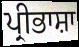
ਪ੍ਰੀਭਾਸ਼ਾ